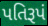
પતિરૂપં